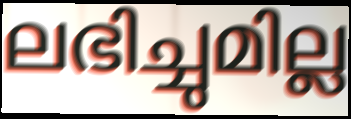
ലഭിച്ചുമില്ല